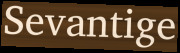
Sevantige